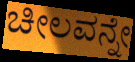
ಚೀಲವನ್ನೇ